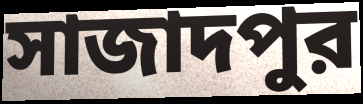
সাজাদপুর